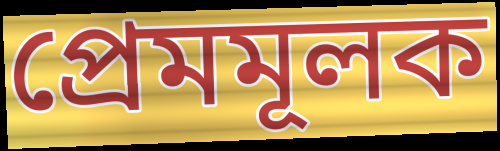
প্ৰেমমূলক